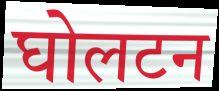
घोलटन